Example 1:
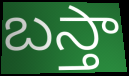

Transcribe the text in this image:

బస్తా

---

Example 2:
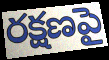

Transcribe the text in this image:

రక్షణపై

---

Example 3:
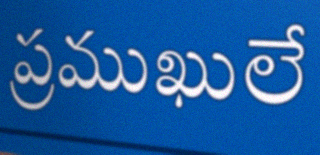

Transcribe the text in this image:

ప్రముఖులే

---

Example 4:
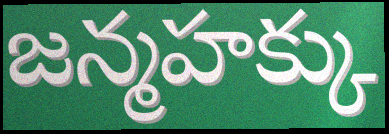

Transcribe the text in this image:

జన్మహక్కు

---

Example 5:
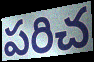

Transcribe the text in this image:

పరిచ